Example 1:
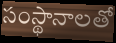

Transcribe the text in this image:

సంస్థానాలతో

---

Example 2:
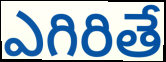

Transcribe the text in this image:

ఎగిరితే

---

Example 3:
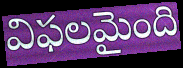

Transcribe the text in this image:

విఫలమైంది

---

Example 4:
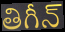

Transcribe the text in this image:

తిగీన్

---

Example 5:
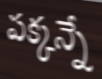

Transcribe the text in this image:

పక్కన్నే